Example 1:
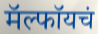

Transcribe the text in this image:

मॅल्फॉयचं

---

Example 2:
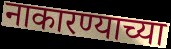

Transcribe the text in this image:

नाकारण्याच्या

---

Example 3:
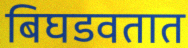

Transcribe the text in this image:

बिघडवतात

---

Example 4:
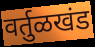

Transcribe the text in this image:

वर्तुळखंड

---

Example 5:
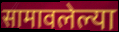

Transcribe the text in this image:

सामावलेल्या